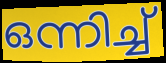
ഒന്നിച്ച്